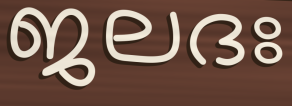
ജലദഃ